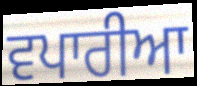
ਵਪਾਰੀਆ